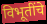
विभूतींचे